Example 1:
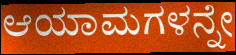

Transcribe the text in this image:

ಆಯಾಮಗಳನ್ನೇ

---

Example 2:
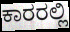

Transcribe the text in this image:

ಕಾರರಲ್ಲಿ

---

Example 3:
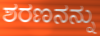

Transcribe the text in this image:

ಶರಣನನ್ನು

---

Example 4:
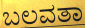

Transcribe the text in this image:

ಬಲವತಾ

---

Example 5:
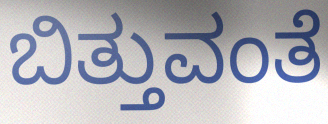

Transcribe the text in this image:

ಬಿತ್ತುವಂತೆ